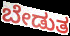
ಬೇಡುತ